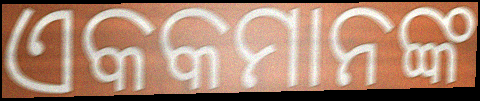
ଏକକମାନଙ୍କ